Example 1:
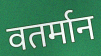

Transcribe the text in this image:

वतर्मान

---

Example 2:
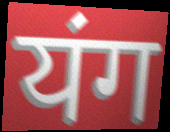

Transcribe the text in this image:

यंग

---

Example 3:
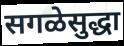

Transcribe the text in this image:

सगळेसुद्धा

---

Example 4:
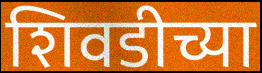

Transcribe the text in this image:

शिवडीच्या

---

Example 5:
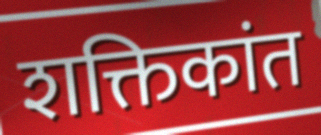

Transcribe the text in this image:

शक्तिकांत